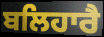
ਬਲਿਹਾਰੈ